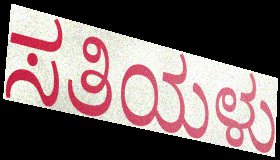
ಸತಿಯಳು